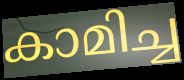
കാമിച്ച